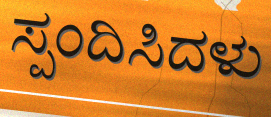
ಸ್ಪಂದಿಸಿದಳು